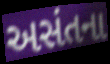
અસંતના